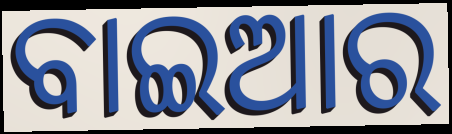
ବାଇଆର